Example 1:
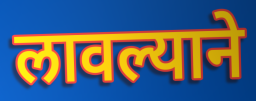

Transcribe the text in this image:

लावल्याने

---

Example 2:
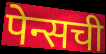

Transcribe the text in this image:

पेन्सची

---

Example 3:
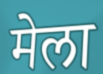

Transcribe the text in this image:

मेला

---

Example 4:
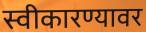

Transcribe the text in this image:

स्वीकारण्यावर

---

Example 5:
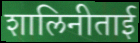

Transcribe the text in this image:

शालिनीताई